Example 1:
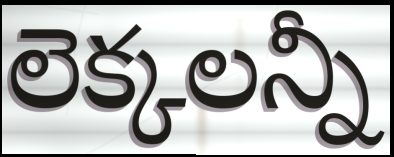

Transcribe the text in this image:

లెక్కలన్నీ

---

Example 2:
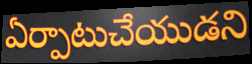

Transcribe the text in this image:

ఏర్పాటుచేయుడని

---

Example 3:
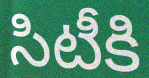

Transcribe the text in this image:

సిటీకి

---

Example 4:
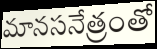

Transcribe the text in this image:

మానసనేత్రంతో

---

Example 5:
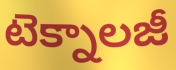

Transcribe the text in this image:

టెక్నాలజీ